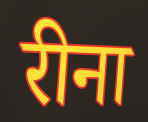
रीना